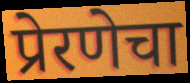
प्रेरणेचा